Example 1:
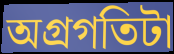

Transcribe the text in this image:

অগ্রগতিটা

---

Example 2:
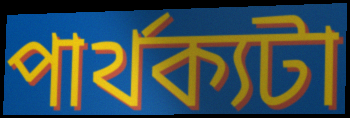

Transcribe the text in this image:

পার্থক্যটা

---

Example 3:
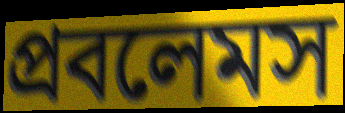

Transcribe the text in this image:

প্রবলেমস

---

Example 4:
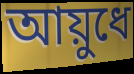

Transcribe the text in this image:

আয়ুধে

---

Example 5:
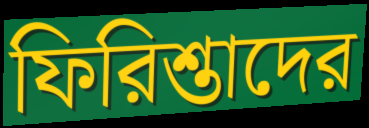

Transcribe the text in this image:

ফিরিশ্তাদের